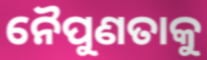
ନୈପୁଣତାକୁ